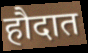
हौदात